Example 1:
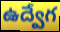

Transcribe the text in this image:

ఉద్వేగ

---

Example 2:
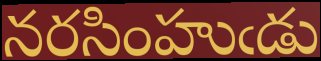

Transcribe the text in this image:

నరసింహుఁడు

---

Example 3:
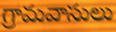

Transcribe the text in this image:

గ్రామవాసులు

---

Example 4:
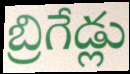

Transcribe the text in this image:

బ్రిగేడ్లు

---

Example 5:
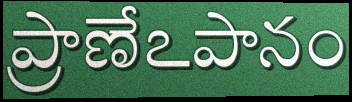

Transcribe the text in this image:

ప్రాణేఽపానం